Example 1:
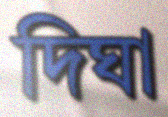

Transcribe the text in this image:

দিঘা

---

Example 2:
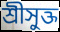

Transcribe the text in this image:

শ্রীসুক্ত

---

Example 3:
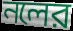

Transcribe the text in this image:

নলের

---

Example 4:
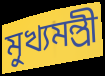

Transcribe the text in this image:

মুখ্যমন্ত্রী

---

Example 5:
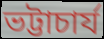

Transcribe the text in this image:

ভট্টাচার্য